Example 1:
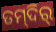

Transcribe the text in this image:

ତମ୍‍ଦିର୍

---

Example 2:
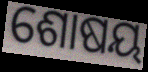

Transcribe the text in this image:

ଶୋଷୟ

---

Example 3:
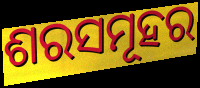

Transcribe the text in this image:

ଶରସମୂହର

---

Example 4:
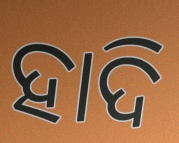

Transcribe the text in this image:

ହାଦି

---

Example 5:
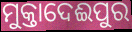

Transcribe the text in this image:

ମୁକ୍ତାଦେଈପୁର